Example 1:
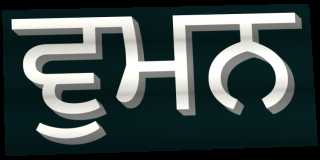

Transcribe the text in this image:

ਵੁਮਨ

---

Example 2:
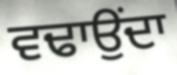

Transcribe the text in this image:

ਵਢਾਉਂਦਾ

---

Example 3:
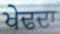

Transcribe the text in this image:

ਖੇਢਦਾ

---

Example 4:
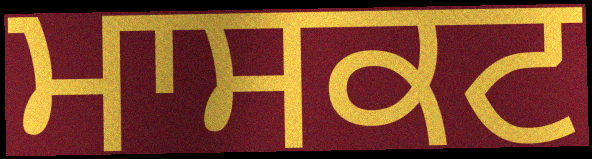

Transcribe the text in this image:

ਮਾਸਕਟ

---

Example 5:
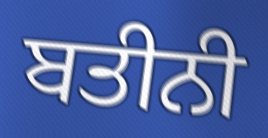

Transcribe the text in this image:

ਬਤੀਨੀ